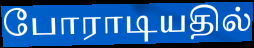
போராடியதில்